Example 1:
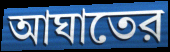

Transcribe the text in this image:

আঘাতের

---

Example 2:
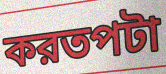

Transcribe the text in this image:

করতপটা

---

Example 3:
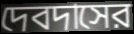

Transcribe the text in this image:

দেবদাসের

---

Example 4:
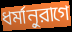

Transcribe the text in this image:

ধর্মানুরাগে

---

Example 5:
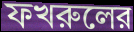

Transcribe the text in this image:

ফখরুলের